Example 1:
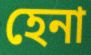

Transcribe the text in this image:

হেনা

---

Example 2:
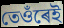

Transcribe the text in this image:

তেওঁৰেই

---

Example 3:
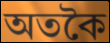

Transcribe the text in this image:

অতকৈ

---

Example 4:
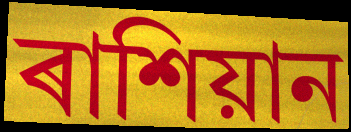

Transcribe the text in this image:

ৰাশিয়ান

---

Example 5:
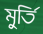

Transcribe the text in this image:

মুৰ্তি